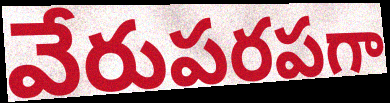
వేరుపరపగా